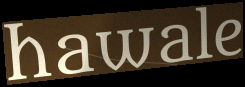
hawale